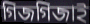
গিজগিজাই